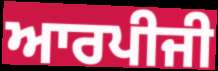
ਆਰਪੀਜੀ